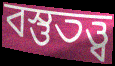
বস্তুতত্ত্ব